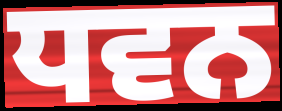
ਧਵਨ